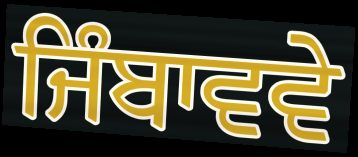
ਜਿੰਬਾਵਵੇ